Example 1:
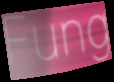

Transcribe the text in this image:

Fung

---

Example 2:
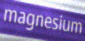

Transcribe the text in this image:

magnesium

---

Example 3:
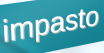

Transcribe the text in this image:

impasto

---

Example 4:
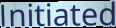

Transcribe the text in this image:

Initiated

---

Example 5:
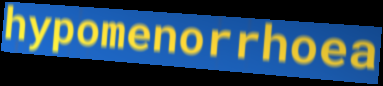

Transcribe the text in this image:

hypomenorrhoea